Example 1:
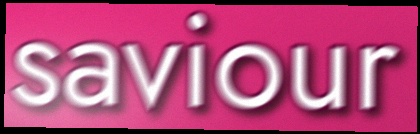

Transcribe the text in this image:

saviour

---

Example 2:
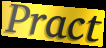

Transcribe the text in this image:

Pract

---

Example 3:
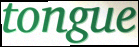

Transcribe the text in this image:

tongue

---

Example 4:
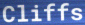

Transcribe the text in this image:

Cliffs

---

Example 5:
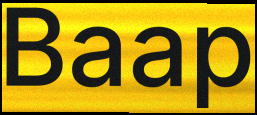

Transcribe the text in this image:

Baap